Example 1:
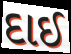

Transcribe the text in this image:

દાઈ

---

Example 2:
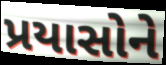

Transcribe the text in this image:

પ્રયાસોને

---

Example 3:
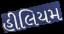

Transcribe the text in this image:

હીલિયમ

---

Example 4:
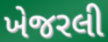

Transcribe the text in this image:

ખેજરલી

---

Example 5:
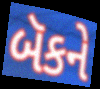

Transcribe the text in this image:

બૅકને